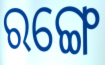
ରଙ୍ଗେ